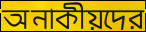
অনাকীয়দের